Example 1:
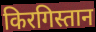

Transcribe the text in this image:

किरगिस्तान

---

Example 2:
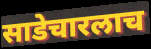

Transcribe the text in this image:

साडेचारलाच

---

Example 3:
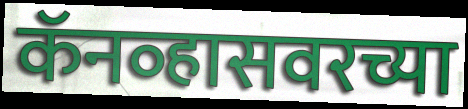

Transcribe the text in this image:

कॅनव्हासवरच्या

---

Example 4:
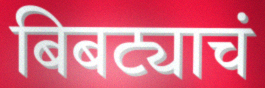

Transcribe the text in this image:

बिबट्याचं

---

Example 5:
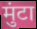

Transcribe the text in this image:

मुंटा